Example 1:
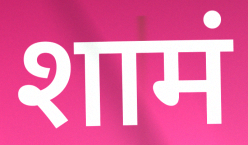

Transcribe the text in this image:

शामं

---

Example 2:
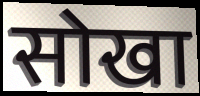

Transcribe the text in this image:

सोखा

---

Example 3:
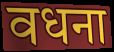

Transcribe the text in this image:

वधना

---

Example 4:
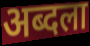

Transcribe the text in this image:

अब्दला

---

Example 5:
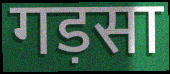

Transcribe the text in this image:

गड़सा